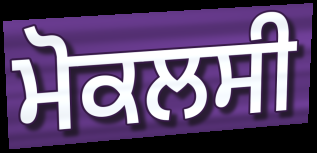
ਮੋਕਲਸੀ